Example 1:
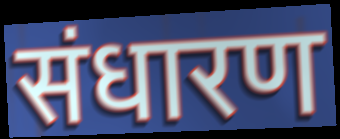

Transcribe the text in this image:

संधारण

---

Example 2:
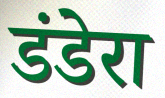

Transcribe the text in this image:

डंडेरा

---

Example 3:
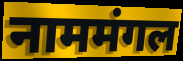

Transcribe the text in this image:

नाममंगल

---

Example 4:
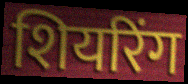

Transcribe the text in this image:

शियरिंग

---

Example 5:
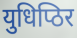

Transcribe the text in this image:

युधिप्ठिर